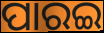
ପାରଇ